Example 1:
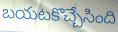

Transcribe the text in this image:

బయటకొచ్చేసింది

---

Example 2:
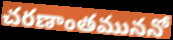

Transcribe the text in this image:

చరణాంతముననో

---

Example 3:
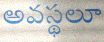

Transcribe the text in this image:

అవస్థలూ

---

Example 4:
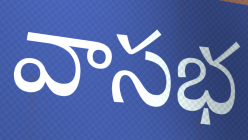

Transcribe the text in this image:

వాసభ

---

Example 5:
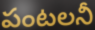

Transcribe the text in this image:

పంటలనీ